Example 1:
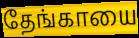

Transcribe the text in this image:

தேங்காயை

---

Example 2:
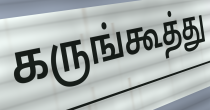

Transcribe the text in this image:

கருங்கூத்து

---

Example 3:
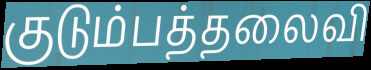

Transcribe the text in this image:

குடும்பத்தலைவி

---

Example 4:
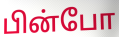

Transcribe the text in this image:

பின்போ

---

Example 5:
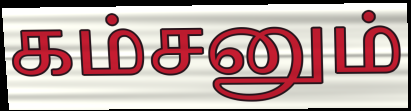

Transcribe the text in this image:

கம்சனும்